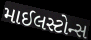
માઈલસ્ટોન્સ